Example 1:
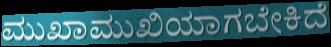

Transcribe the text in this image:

ಮುಖಾಮುಖಿಯಾಗಬೇಕಿದೆ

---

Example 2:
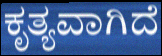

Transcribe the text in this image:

ಕೃತ್ಯವಾಗಿದೆ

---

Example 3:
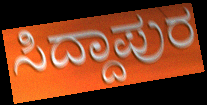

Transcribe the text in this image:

ಸಿದ್ದಾಪುರ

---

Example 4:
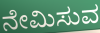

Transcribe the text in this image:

ನೇಮಿಸುವ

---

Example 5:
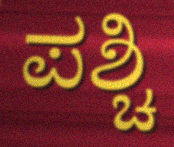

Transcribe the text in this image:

ಪಶ್ಚಿ